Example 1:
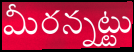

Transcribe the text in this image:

మీరన్నట్టు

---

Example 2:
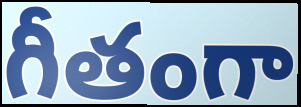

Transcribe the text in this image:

గీతంగా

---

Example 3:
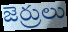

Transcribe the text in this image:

జెర్రులు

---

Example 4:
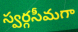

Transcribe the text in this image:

స్వర్గసీమగా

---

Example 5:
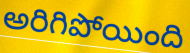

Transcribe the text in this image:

అరిగిపోయింది